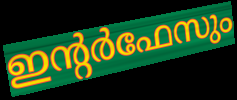
ഇന്റർഫേസും